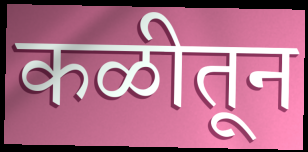
कळीतून